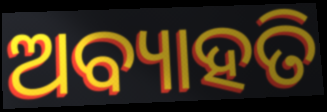
ଅବ୍ୟାହତି